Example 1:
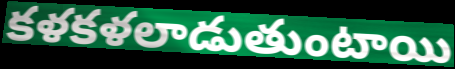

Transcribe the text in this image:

కళకళలాడుతుంటాయి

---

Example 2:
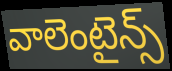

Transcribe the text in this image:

వాలెంటైన్స్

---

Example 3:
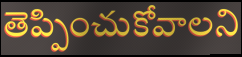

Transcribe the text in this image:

తెప్పించుకోవాలని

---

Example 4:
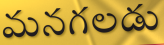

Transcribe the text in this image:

మనగలడు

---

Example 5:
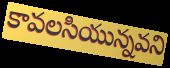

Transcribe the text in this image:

కావలసియున్నవని